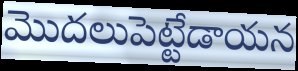
మొదలుపెట్టేడాయన